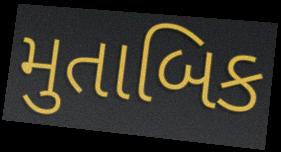
મુતાબિક